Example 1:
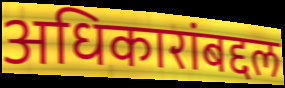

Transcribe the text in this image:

अधिकारांबद्दल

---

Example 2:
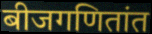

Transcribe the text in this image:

बीजगणितांत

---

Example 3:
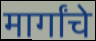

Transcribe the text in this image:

मार्गांचे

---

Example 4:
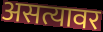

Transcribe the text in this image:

असत्यावर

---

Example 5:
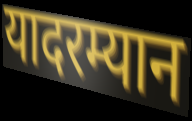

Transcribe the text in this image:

यादरम्यान